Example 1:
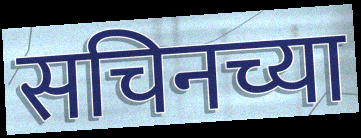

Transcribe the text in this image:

सचिनच्या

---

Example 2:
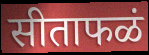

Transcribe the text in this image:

सीताफळं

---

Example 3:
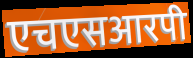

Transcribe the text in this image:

एचएसआरपी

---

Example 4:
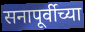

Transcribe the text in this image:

सनापूर्वीच्या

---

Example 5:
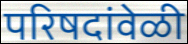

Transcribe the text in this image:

परिषदांवेळी